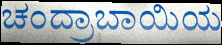
ಚಂದ್ರಾಬಾಯಿಯ